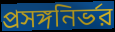
প্রসঙ্গনির্ভর